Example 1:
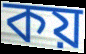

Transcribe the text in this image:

কয়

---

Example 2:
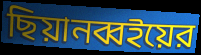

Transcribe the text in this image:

ছিয়ানব্বইয়ের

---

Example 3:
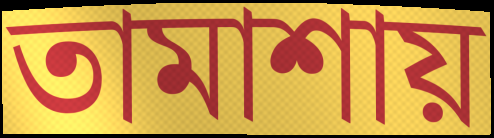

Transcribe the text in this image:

তামাশায়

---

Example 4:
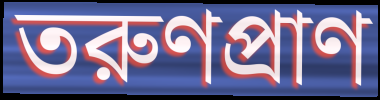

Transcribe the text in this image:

তরুণপ্রাণ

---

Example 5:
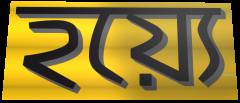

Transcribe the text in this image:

হয়্যে